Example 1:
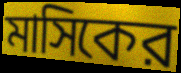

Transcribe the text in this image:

মাসিকের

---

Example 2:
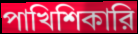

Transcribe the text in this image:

পাখিশিকারি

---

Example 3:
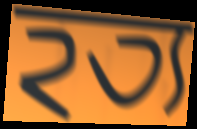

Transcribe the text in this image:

হত্য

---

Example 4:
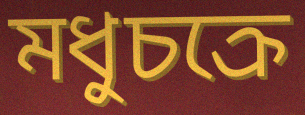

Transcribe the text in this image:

মধুচক্রে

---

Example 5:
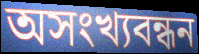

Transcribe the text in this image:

অসংখ্যবন্ধন